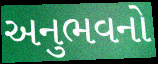
અનુભવનો